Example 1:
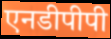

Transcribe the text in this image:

एनडीपीपी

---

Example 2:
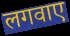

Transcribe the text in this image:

लगवाए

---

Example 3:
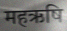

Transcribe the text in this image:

महऋषि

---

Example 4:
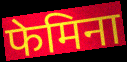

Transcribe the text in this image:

फेमिना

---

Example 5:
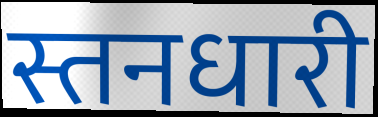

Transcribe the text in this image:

स्‍तनधारी